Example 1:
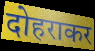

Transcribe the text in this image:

दोहराकर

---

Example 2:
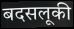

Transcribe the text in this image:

बदसलूकी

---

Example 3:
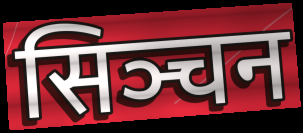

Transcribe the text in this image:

सिञ्चन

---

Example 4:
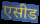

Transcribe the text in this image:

एसीड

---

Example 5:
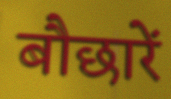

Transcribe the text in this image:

बौछारें